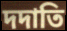
দদাতি